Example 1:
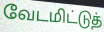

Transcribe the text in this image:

வேடமிட்டுத்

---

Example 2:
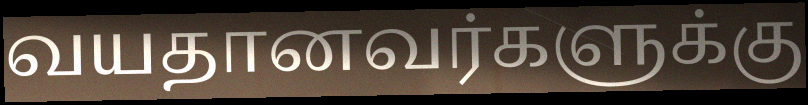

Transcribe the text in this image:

வயதானவர்களுக்கு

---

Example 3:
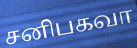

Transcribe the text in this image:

சனிபகவா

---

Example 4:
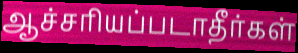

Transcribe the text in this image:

ஆச்சரியப்படாதீர்கள்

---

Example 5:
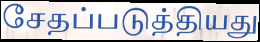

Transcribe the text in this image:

சேதப்படுத்தியது